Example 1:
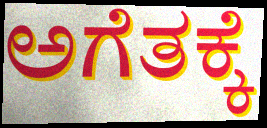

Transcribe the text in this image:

ಅಗೆತಕ್ಕೆ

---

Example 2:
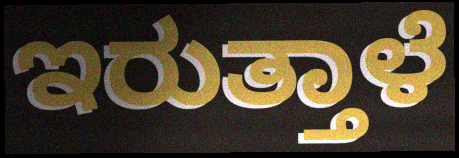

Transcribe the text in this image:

ಇರುತ್ತಾಳೆ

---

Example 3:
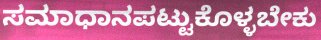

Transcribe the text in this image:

ಸಮಾಧಾನಪಟ್ಟುಕೊಳ್ಳಬೇಕು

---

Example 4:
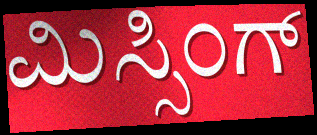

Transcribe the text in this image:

ಮಿಸ್ಸಿಂಗ್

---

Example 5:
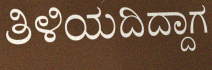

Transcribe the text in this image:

ತಿಳಿಯದಿದ್ದಾಗ